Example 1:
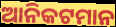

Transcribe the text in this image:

ଆନିକଟମାନ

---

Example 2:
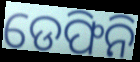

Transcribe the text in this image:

ଡେଫିନି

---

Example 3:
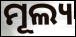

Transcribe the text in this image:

ମୂଲ୍ୟ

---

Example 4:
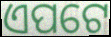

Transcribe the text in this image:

ଏପଟେ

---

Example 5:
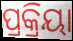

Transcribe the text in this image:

ପ୍ରକ୍ରିୟା